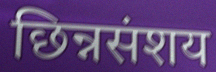
छिन्नसंशय